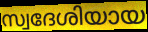
സ്വദേശിയായ